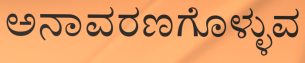
ಅನಾವರಣಗೊಳ್ಳುವ